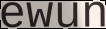
ewun